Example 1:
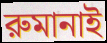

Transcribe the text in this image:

রুমানাই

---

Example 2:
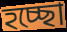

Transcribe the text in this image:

হচ্ছো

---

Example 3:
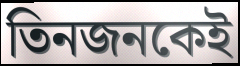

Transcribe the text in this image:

তিনজনকেই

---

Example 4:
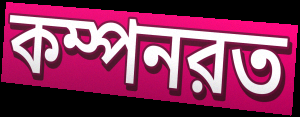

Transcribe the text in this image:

কম্পনরত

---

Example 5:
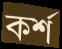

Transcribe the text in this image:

কর্শ